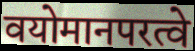
वयोमानपरत्वे